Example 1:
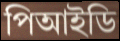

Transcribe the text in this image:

পিআইডি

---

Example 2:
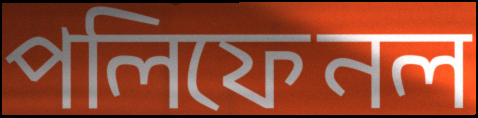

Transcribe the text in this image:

পলিফেনল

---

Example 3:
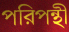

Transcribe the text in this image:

পরিপন্থী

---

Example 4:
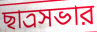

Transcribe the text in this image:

ছাত্রসভার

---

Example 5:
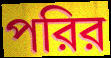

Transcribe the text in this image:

পরির